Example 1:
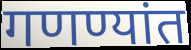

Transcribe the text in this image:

गणण्यांत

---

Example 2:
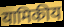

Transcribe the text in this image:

यामिकीय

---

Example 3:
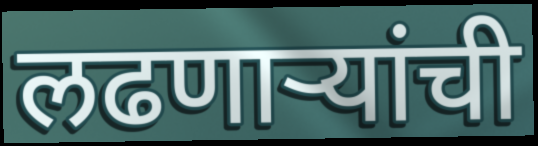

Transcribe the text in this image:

लढणाऱ्यांची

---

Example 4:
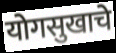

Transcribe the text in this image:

योगसुखाचे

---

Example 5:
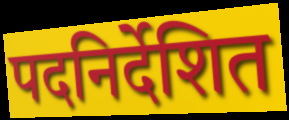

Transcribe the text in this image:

पदनिर्देशित